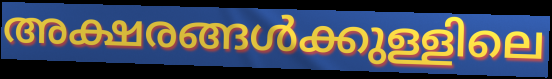
അക്ഷരങ്ങൾക്കുള്ളിലെ